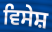
ਵਿਸੇਸ਼